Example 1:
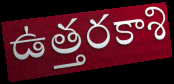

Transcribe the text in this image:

ఉత్తరకాశి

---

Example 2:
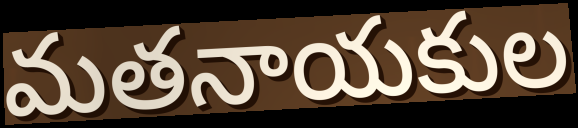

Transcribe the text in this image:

మతనాయకుల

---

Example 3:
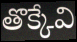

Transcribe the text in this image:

తొక్కేవి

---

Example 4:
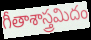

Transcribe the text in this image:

గీతాశాస్త్రమిదం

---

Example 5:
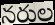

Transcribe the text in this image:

నరుల